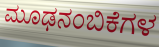
ಮೂಢನಂಬಿಕೆಗಳ